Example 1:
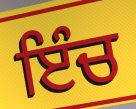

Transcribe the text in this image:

ਇੰਚ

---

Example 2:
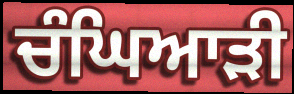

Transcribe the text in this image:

ਚੰਘਿਆੜੀ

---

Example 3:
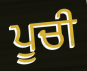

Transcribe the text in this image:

ਪੂਚੀ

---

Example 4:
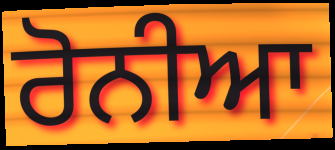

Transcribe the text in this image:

ਰੋਨੀਆ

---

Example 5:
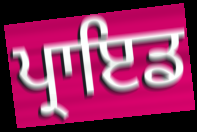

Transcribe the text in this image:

ਪ੍ਰਾਇਡ